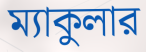
ম্যাকুলার